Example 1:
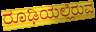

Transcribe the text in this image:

ರೂಢಿಯಲ್ಲಿರುವ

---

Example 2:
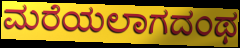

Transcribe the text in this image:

ಮರೆಯಲಾಗದಂಥ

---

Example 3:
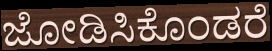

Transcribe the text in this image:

ಜೋಡಿಸಿಕೊಂಡರೆ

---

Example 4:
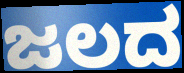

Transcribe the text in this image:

ಜಲದ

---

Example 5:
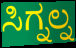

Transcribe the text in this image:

ಸಿಗ್ನಲ್ನ